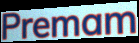
Premam